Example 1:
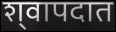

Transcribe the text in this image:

श्वापदात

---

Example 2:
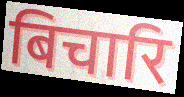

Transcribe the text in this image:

बिचारि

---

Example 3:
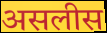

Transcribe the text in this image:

असलीस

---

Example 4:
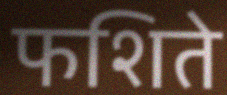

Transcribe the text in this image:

फशिते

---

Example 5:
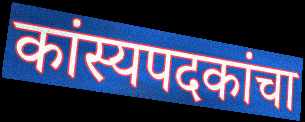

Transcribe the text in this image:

कांस्यपदकांचा